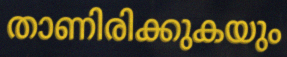
താണിരിക്കുകയും